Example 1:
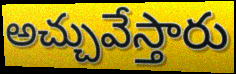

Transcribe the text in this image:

అచ్చువేస్తారు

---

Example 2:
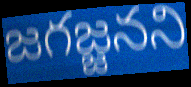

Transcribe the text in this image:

జగజ్జనని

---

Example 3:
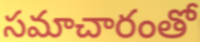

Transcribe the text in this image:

సమాచారంతో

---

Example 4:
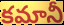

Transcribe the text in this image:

కమానీ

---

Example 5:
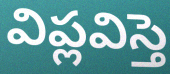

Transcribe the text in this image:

విప్లవిస్తె